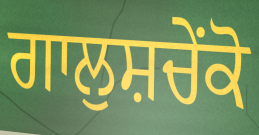
ਗਾਲੁਸ਼ਚੇਂਕੋ